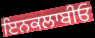
ਇਨਕਲਾਬੀਓ